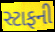
સ્ટાફની